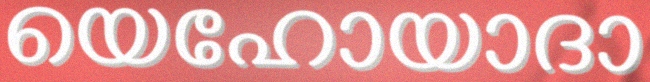
യെഹോയാദാ